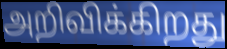
அறிவிக்கிறது